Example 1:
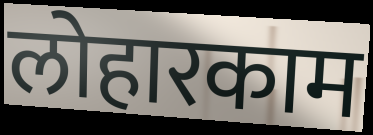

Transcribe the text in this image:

लोहारकाम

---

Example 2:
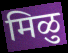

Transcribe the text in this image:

मिळु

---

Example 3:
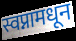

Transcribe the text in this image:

स्वप्नामधून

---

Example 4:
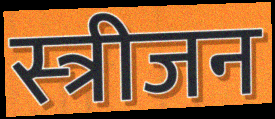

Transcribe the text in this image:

स्त्रीजन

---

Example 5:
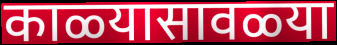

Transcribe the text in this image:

काळ्यासावळ्या